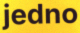
jedno